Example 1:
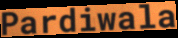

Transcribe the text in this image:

Pardiwala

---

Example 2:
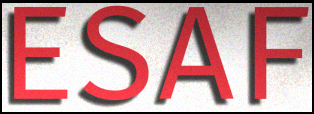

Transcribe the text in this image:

ESAF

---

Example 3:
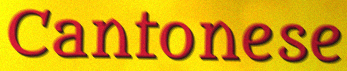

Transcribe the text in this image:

Cantonese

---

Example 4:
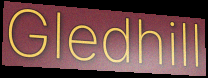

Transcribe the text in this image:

Gledhill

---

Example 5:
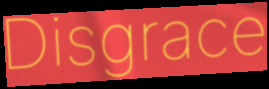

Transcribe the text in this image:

Disgrace